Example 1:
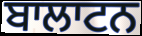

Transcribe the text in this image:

ਬਾਲਾਟਨ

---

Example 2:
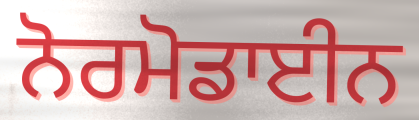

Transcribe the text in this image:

ਨੋਰਮੋਡਾਈਨ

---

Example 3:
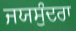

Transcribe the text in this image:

ਜਯਸੁੰਦਰਾ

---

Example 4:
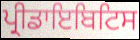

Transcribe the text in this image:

ਪ੍ਰੀਡਾਇਬਿਟਿਸ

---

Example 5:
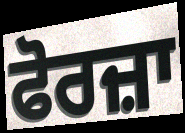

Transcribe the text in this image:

ਫੋਰਜ਼ਾ